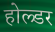
होल्डर